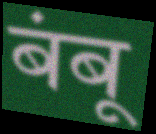
बंबू